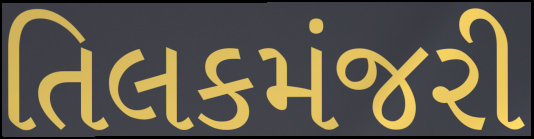
તિલકમંજરી